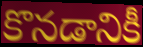
కొనడానికీ